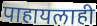
पाहायलाही